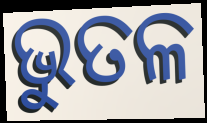
ଭୁତଳ